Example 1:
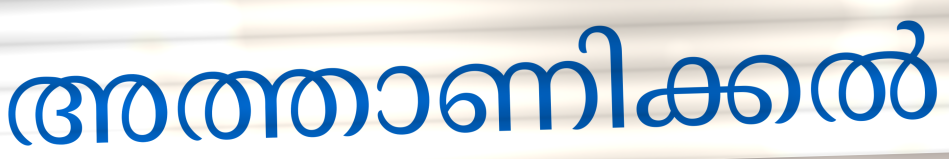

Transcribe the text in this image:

അത്താണിക്കൽ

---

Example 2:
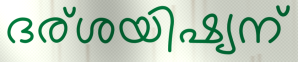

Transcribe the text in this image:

ദര്ശയിഷ്യന്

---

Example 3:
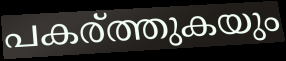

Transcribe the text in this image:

പകര്ത്തുകയും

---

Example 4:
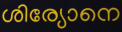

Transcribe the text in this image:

ശിര്യോനെ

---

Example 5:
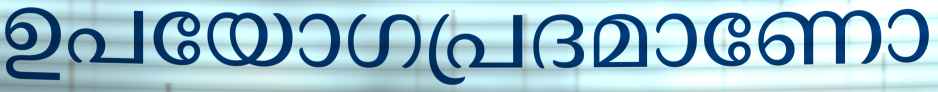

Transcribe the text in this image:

ഉപയോഗപ്രദമാണോ